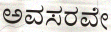
ಅವಸರವೇ